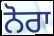
ਨੋਰਾ